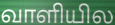
வாளியில